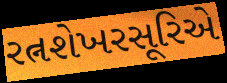
રત્નશેખરસૂરિએ